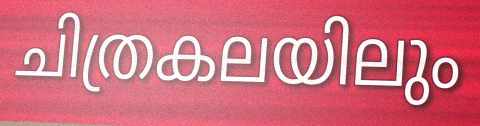
ചിത്രകലയിലും